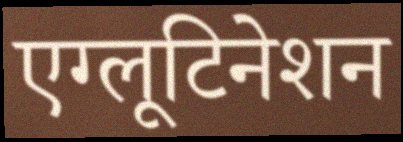
एग्लूटिनेशन